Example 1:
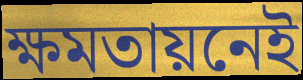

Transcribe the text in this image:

ক্ষমতায়নেই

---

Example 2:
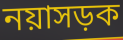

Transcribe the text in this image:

নয়াসড়ক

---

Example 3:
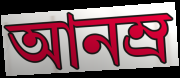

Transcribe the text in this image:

আনম্র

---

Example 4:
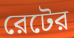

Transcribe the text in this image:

রেটের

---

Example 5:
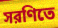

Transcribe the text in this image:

সরণিতে